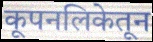
कूपनलिकेतून